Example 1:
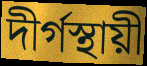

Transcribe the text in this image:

দীর্গস্থায়ী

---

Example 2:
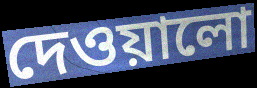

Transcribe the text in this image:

দেওয়ালো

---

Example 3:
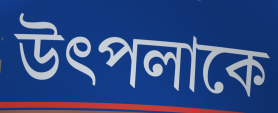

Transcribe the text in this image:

উৎপলাকে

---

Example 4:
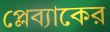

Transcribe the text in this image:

প্লেব্যাকের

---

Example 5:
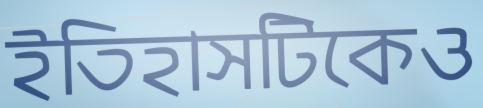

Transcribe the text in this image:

ইতিহাসটিকেও